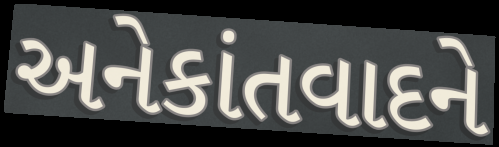
અનેકાંતવાદને